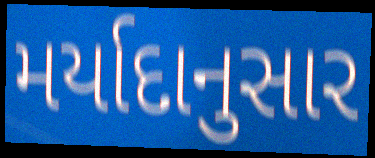
મર્યાદાનુસાર